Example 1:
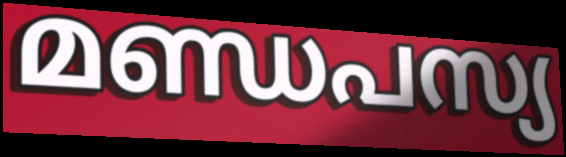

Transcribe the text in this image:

മണ്ഡപസ്യ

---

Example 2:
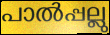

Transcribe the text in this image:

പാൽപ്പല്ലു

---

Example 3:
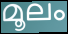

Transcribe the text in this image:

മൂലം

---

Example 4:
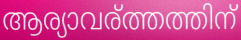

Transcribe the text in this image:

ആര്യാവര്ത്തത്തിന്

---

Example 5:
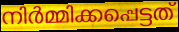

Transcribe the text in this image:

നിർമ്മിക്കപ്പെട്ടത്